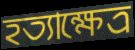
হত্যাক্ষেত্র